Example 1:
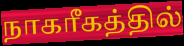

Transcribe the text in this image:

நாகரீகத்தில்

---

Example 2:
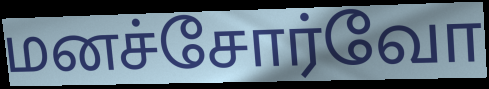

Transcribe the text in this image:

மனச்சோர்வோ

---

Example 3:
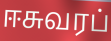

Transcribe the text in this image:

ஈசுவரப்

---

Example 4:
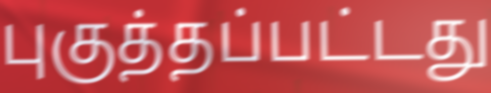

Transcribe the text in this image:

புகுத்தப்பட்டது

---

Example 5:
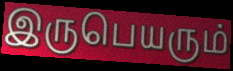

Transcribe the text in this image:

இருபெயரும்